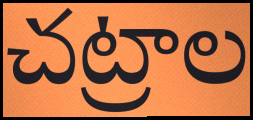
చట్రాల